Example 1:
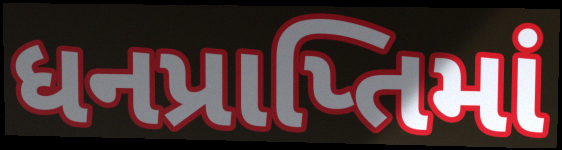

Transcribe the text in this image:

ધનપ્રાપ્તિમાં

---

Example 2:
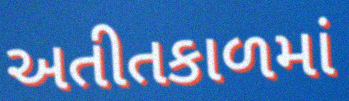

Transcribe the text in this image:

અતીતકાળમાં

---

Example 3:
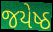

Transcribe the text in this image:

જયેષ્ઠ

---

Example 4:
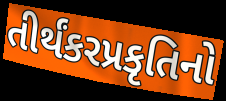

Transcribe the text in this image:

તીર્થંકરપ્રકૃતિનો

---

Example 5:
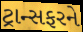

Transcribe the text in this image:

ટ્રાન્સફરને